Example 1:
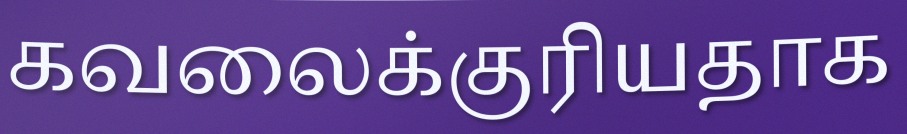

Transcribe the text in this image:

கவலைக்குரியதாக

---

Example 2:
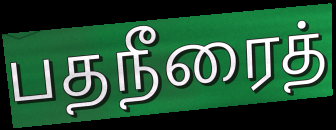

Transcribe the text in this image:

பதநீரைத்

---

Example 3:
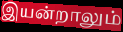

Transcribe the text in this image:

இயன்றாலும்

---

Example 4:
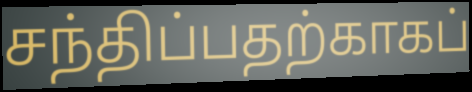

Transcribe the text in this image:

சந்திப்பதற்காகப்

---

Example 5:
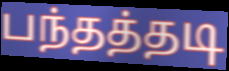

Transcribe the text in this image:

பந்தத்தடி